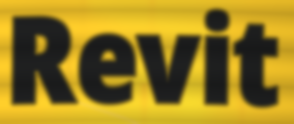
Revit